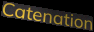
Catenation